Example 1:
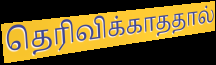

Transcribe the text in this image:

தெரிவிக்காததால்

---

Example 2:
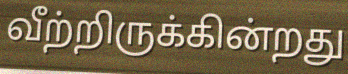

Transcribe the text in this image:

வீற்றிருக்கின்றது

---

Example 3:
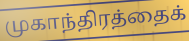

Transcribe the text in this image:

முகாந்திரத்தைக்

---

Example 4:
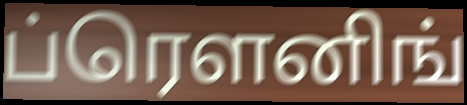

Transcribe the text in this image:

ப்ரௌனிங்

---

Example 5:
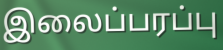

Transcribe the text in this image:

இலைப்பரப்பு